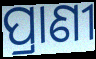
ପ୍ରାଣୀ